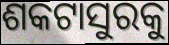
ଶକଟାସୁରକୁ